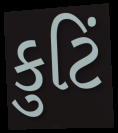
કુટિં